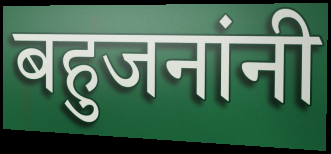
बहुजनांनी